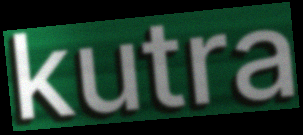
kutra